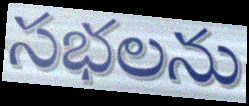
సభలను